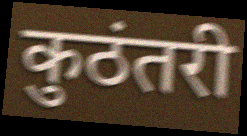
कुठंतरी